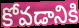
కోవడానికి